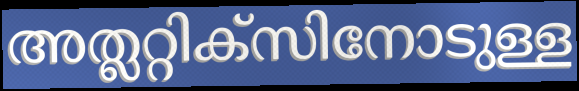
അത്ലറ്റിക്സിനോടുള്ള